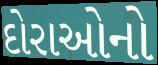
દોરાઓનો